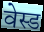
वेस्ड